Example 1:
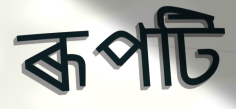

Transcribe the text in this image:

ৰূপটি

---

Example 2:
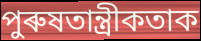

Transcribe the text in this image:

পুৰুষতান্ত্ৰীকতাক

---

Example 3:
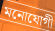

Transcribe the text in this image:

মনোযোগী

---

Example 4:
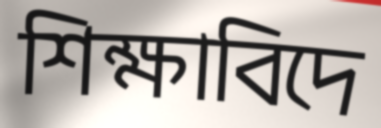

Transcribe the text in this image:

শিক্ষাবিদে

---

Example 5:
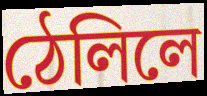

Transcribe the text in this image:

ঠেলিলে